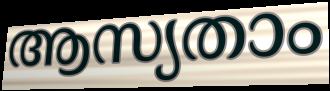
ആസ്യതാം